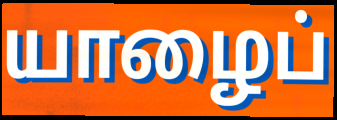
யாழைப்